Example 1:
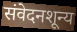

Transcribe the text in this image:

संवेदनशून्य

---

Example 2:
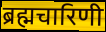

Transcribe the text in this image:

ब्रह्मचारिणी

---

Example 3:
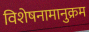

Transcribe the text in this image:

विशेषनामानुक्रम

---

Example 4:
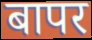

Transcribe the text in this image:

बापर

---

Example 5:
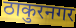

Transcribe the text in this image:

ठाकुरनगर